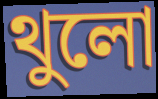
থুলো